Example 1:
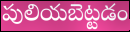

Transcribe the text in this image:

పులియబెట్టడం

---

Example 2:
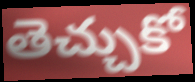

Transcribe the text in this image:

తెచ్చుకో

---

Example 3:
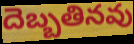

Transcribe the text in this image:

దెబ్బతినవు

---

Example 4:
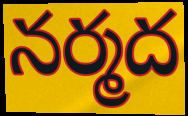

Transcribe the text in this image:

నర్మద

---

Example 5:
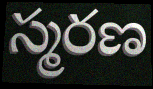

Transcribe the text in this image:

స్మరణ